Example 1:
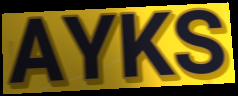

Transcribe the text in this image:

AYKS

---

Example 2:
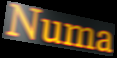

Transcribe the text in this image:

Numa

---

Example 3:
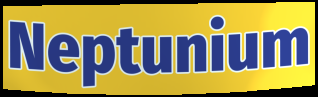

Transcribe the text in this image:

Neptunium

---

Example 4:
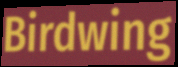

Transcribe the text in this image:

Birdwing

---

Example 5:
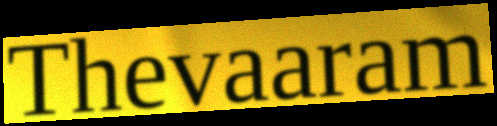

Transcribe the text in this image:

Thevaaram